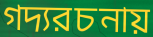
গদ্যরচনায়